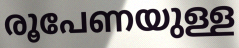
രൂപേണയുള്ള